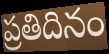
ప్రతిదినం